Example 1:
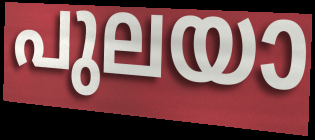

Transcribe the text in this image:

പുലയാ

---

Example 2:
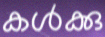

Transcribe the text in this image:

കൾക്കു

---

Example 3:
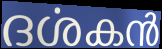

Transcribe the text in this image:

ദൎശകൻ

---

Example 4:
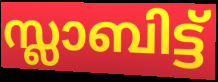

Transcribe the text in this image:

സ്ലാബിട്ട്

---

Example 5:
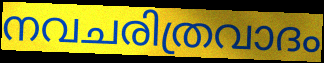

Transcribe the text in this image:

നവചരിത്രവാദം